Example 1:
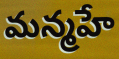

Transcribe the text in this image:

మన్మహే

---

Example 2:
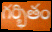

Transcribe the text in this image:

గర్భితం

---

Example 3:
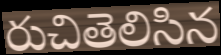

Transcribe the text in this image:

రుచితెలిసిన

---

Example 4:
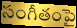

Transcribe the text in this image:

సంగీతంపై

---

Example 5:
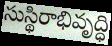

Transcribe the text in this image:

సుస్థిరాభివృద్ధి